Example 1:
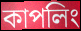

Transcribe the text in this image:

কাপলিং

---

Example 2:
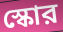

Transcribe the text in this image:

স্কোর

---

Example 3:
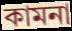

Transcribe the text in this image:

কামনা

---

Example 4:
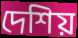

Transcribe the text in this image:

দেশিয়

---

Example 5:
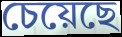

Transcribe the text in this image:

চেয়েছে